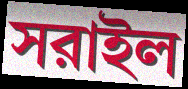
সরাইল